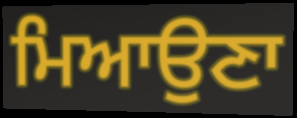
ਮਿਆਉਣਾ